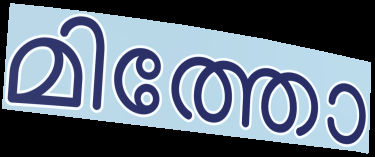
മിത്തോ